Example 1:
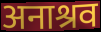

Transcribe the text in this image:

अनाश्रव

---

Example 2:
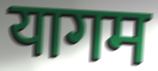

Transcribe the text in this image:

यागम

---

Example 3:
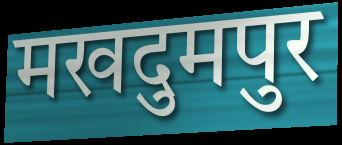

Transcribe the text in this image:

मखदुमपुर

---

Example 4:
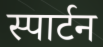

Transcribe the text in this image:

स्पार्टन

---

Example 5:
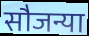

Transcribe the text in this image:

सौजन्या